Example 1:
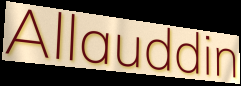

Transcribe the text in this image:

Allauddin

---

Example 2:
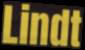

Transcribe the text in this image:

Lindt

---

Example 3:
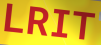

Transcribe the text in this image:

LRIT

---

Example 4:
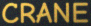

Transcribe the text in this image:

CRANE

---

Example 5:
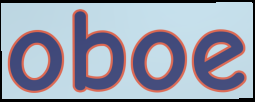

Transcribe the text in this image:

oboe